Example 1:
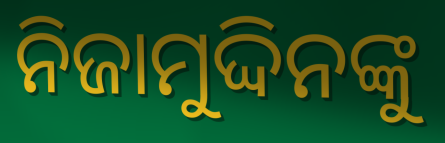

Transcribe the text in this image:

ନିଜାମୁଦ୍ଦିନଙ୍କୁ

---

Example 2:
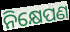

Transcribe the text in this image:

ନିକ୍ଷେପଣ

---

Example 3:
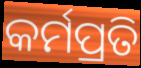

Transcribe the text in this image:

କର୍ମପ୍ରତି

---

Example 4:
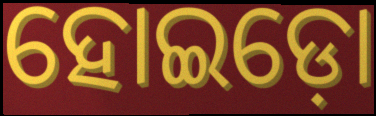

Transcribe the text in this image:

ହୋଇଡ଼ୋ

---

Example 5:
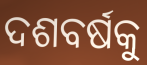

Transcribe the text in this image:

ଦଶବର୍ଷକୁ